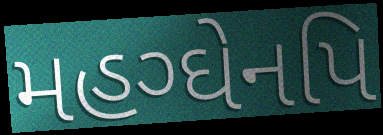
મહગ્ઘેનપિ